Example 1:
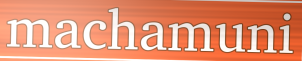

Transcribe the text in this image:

machamuni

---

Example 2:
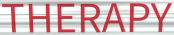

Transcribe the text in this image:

THERAPY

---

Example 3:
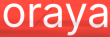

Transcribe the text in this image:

oraya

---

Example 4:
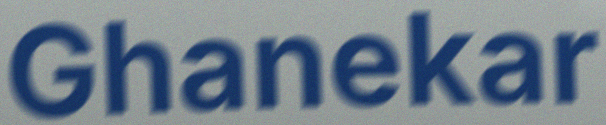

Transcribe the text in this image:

Ghanekar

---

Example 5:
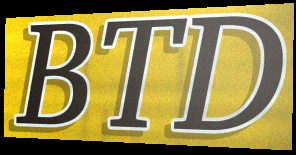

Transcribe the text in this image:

BTD